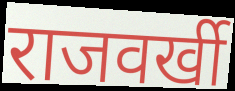
राजवर्खी